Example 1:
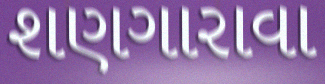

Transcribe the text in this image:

શણગારાવા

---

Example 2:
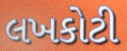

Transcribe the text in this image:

લખકોટી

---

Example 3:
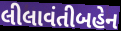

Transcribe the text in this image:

લીલાવંતીબહેન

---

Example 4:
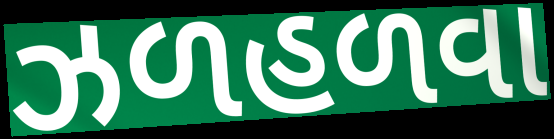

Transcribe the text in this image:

ઝળહળવા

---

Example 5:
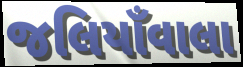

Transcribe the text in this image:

જલિયાઁવાલા